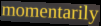
momentarily